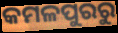
କମଳପୁରରୁ